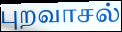
புறவாசல்